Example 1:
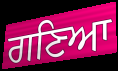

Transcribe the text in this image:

ਗਣਿਆ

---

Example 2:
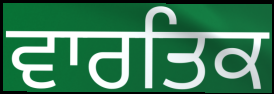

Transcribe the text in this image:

ਵਾਰਤਿਕ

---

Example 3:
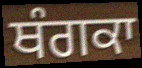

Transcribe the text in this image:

ਥੰਗਕਾ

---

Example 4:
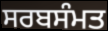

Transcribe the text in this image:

ਸਰਬਸੰਮਤ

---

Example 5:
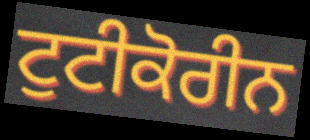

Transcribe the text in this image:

ਟੁਟੀਕੋਰੀਨ